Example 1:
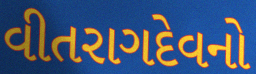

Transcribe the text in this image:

વીતરાગદેવનો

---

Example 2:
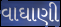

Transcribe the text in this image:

વાઘાણી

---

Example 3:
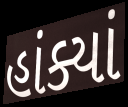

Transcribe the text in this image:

હાંક્યાં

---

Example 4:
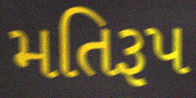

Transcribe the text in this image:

મતિરૂપ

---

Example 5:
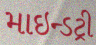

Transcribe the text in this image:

માઇન્ડટ્રી